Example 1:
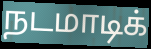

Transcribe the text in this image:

நடமாடிக்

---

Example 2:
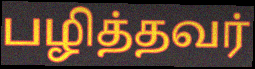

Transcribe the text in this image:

பழித்தவர்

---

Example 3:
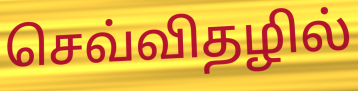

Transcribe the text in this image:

செவ்விதழில்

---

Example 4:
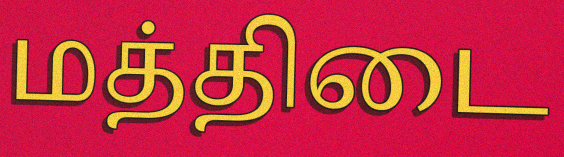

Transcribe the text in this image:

மத்திடை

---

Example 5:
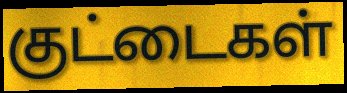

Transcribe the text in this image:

குட்டைகள்